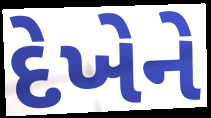
દેખેને